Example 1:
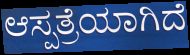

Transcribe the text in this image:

ಆಸ್ಪತ್ರೆಯಾಗಿದೆ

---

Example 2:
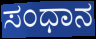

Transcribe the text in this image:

ಸಂಧಾನ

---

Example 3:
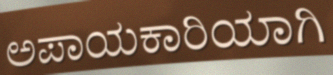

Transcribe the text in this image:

ಅಪಾಯಕಾರಿಯಾಗಿ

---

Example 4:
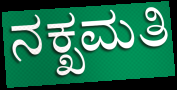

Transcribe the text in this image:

ನಕ್ಖಮತಿ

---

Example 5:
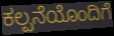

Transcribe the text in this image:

ಕಲ್ಪನೆಯೊಂದಿಗೆ